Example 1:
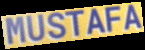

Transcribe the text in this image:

MUSTAFA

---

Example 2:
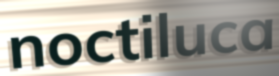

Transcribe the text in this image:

noctiluca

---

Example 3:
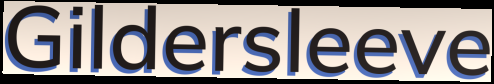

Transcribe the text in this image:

Gildersleeve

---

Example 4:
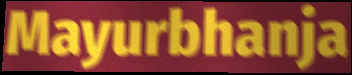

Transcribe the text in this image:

Mayurbhanja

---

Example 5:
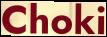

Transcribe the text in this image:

Choki